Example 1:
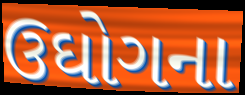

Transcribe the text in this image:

ઉઘોગના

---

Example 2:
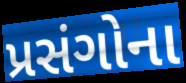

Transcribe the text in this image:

પ્રસંગોના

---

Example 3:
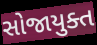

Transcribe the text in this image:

સોજાયુક્ત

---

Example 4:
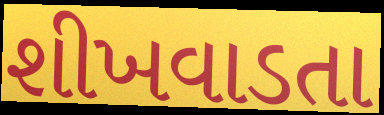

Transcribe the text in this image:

શીખવાડતા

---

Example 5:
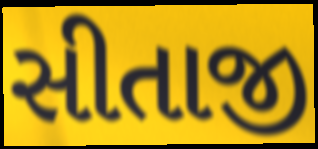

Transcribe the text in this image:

સીતાજી